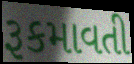
રૂકમાવતી